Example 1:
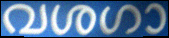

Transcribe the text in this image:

വശഗാ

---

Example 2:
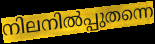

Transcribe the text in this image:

നിലനിൽപ്പുതന്നെ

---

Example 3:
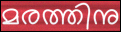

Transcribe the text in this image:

മരത്തിനു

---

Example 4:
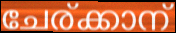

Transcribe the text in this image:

ചേര്ക്കാന്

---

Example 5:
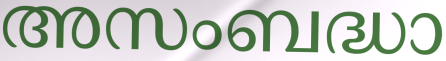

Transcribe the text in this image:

അസംബദ്ധാ